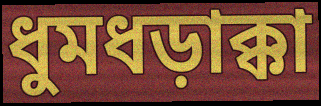
ধুমধড়াক্কা